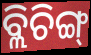
ବ୍ଲିଚିଙ୍ଗ୍